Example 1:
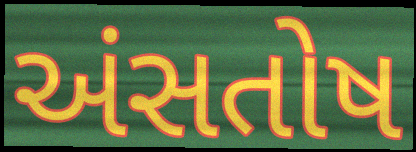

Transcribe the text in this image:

અંસતોષ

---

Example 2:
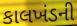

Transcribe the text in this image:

કાલખંડની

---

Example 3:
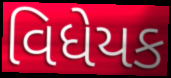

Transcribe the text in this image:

વિધેયક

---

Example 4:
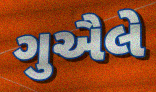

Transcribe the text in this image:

ગુઐલે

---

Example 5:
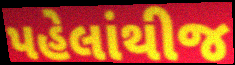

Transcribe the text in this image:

પહેલાંથીજ